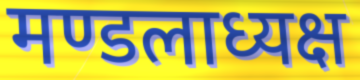
मण्डलाध्यक्ष